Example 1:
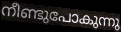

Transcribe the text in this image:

നീണ്ടുപോകുന്നു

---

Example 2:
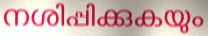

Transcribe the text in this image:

നശിപ്പിക്കുകയും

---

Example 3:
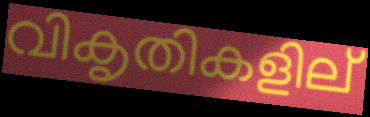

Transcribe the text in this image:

വികൃതികളില്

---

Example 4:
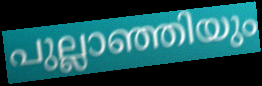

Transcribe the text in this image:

പുല്ലാഞ്ഞിയും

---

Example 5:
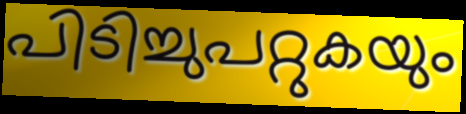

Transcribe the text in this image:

പിടിച്ചുപറ്റുകയും